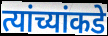
त्यांच्यांकडे